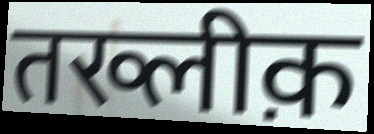
तख्लीक़